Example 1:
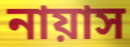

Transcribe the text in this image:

নায়াস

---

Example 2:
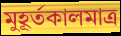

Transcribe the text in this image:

মুহূর্তকালমাত্র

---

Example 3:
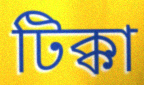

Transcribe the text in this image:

টিক্কা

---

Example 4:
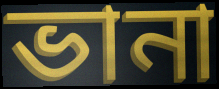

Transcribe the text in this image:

ভানা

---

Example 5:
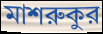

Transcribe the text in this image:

মাশরুকুর